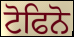
ਟੋਫਿਨੋ